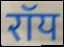
रॉय